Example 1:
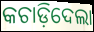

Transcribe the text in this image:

କଚାଡ଼ିଦେଲା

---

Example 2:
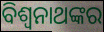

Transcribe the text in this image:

ବିଶ୍ୱନାଥଙ୍କର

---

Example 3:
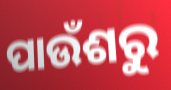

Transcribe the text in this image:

ପାଉଁଶରୁ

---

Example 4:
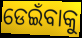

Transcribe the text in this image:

ଡେଇଁବାକୁ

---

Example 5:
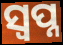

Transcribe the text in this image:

ସ୍ବପ୍ନ